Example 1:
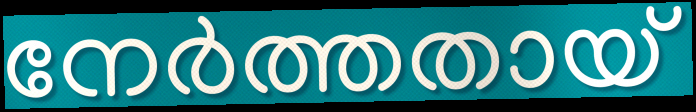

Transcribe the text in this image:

നേർത്തതായ്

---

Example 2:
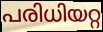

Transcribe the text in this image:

പരിധിയറ്റ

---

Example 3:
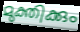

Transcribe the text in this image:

മുക്തിക്കും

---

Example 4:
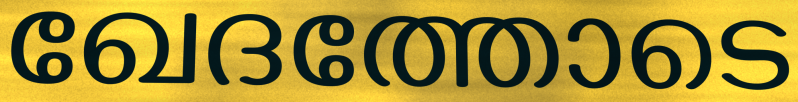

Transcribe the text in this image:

ഖേദത്തോടെ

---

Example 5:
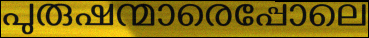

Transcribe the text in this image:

പുരുഷന്മാരെപ്പോലെ